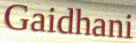
Gaidhani